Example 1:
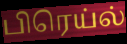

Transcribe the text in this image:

பிரெய்ல்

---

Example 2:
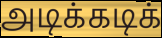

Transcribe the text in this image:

அடிக்கடிக்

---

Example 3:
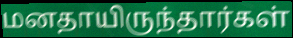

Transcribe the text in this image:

மனதாயிருந்தார்கள்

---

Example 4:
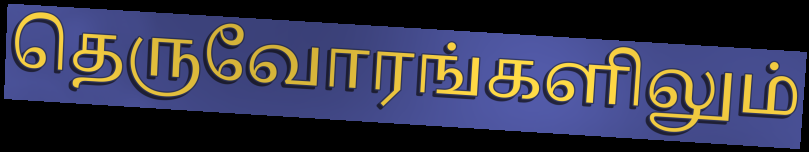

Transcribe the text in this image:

தெருவோரங்களிலும்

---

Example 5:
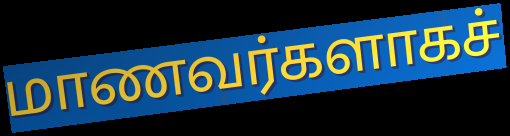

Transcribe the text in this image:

மாணவர்களாகச்